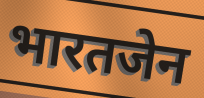
भारतजेन